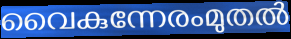
വൈകുന്നേരംമുതൽ